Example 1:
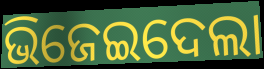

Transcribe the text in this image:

ଭିଜେଇଦେଲା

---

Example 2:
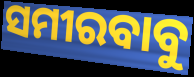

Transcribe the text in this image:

ସମୀରବାବୁ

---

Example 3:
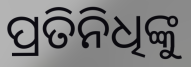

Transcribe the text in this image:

ପ୍ରତିନିଧିଙ୍କୁ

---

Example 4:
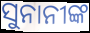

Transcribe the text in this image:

ସୁନାନୀଙ୍କ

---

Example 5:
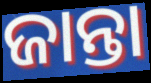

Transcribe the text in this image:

ଜାନ୍ତା